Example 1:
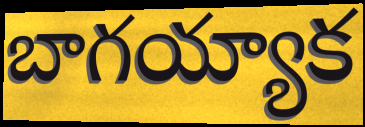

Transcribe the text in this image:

బాగయ్యాక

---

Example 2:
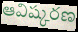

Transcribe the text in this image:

ఆవిష్కరణ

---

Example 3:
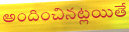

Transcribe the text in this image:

అందించినట్లయితే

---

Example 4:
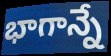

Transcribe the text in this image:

భాగాన్నే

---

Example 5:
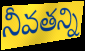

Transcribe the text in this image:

నీవతన్ని